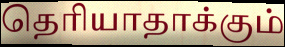
தெரியாதாக்கும்